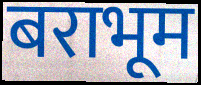
बराभूम